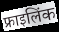
फ्राइलिंक